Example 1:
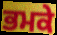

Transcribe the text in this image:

ਭਮਕੇ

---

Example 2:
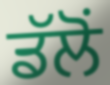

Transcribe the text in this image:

ਡੱਲੋਂ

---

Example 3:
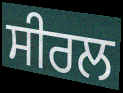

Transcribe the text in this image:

ਸੀਰਲ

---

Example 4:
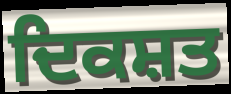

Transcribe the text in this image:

ਦਿਕਸ਼ਤ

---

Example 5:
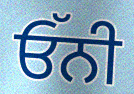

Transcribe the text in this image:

ਓੱਨੀ